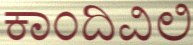
ಕಾಂದಿವಿಲಿ